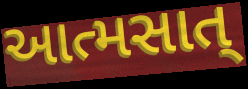
આત્મસાત્